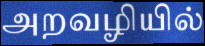
அறவழியில்